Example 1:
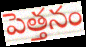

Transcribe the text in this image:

పెత్తనం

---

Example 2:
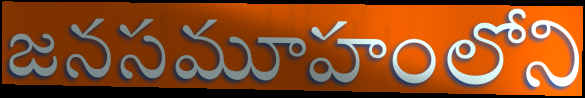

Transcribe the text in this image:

జనసమూహంలోని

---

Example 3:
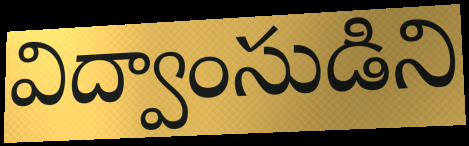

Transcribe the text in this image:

విద్వాంసుడిని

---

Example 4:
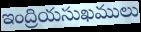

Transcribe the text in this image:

ఇంద్రియసుఖములు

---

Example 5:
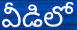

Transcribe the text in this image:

వీడిలో